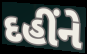
દહીંને